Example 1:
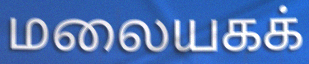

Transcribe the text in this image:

மலையகக்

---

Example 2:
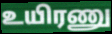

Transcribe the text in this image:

உயிரணு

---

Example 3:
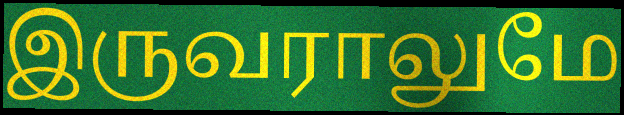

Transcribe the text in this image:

இருவராலுமே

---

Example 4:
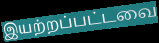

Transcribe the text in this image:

இயற்றப்பட்டவை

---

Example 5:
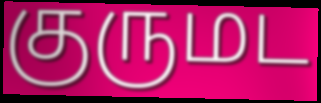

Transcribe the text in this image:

குருமட